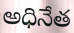
అధినేత